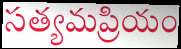
సత్యమప్రియం